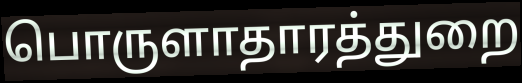
பொருளாதாரத்துறை